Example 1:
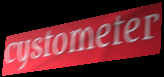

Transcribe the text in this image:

cystometer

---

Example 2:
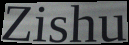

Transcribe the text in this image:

Zishu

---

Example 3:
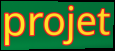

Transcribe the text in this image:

projet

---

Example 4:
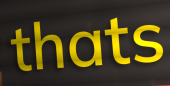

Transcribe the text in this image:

thats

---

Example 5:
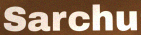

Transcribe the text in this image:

Sarchu